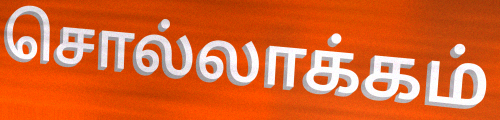
சொல்லாக்கம்